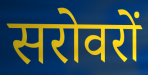
सरोवरों